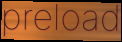
preload